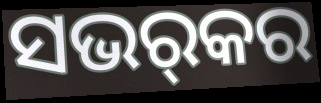
ସଭର୍‌କର